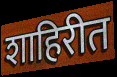
शाहिरीत